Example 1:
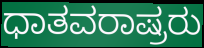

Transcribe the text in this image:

ಧಾತವರಾಷ್ರರು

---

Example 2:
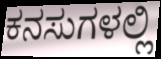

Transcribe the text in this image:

ಕನಸುಗಳಲ್ಲಿ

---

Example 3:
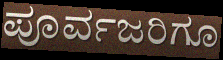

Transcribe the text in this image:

ಪೂರ್ವಜರಿಗೂ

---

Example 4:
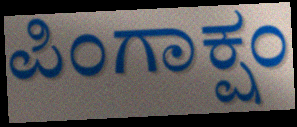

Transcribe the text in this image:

ಪಿಂಗಾಕ್ಷಂ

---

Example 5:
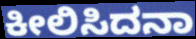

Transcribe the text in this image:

ಕೀಲಿಸಿದನಾ